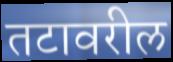
तटावरील